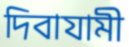
দিবাযামী